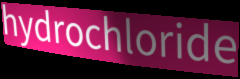
hydrochloride